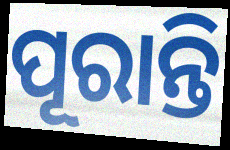
ପୂରାନ୍ତି